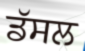
ਡੱਸਲ